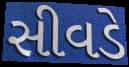
સીવડે